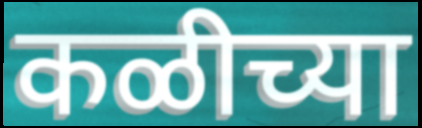
कळीच्या